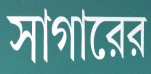
সাগারের